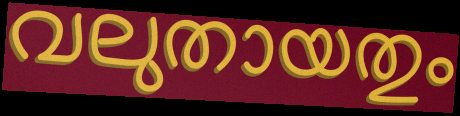
വലുതായതും